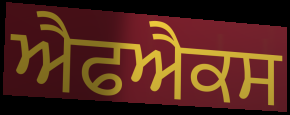
ਐਫਐਕਸ